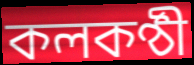
কলকণ্ঠী